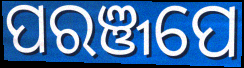
ପରଞ୍ଜପେ